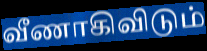
வீணாகிவிடும்